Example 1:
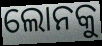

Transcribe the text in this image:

ଲୋନକୁ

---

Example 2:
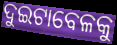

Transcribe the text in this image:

ଦୁଇଟାବେଳକୁ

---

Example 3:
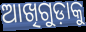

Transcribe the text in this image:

ଆଖିଗୁଡ଼ାକୁ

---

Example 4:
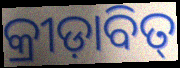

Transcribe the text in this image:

କ୍ରୀଡ଼ାବିତ୍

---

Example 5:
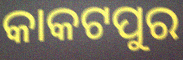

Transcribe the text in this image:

କାକଟପୁର